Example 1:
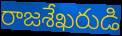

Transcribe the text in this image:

రాజశేఖరుడి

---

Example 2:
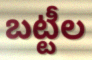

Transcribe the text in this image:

బట్టీల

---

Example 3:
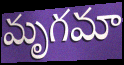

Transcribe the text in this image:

మృగమా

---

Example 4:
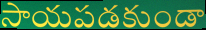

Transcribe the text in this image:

సాయపడకుండా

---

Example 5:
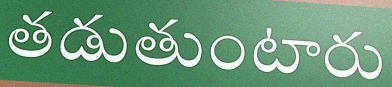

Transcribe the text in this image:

తడుతుంటారు